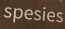
spesies